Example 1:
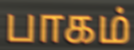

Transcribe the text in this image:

பாகம்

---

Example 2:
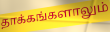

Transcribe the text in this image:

தாக்கங்களாலும்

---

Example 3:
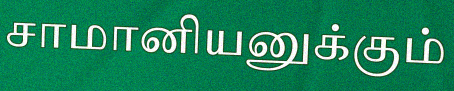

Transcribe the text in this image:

சாமானியனுக்கும்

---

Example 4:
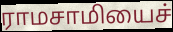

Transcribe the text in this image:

ராமசாமியைச்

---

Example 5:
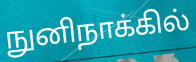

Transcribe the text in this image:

நுனிநாக்கில்